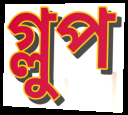
গ্লুপ